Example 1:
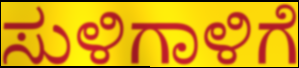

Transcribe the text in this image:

ಸುಳಿಗಾಳಿಗೆ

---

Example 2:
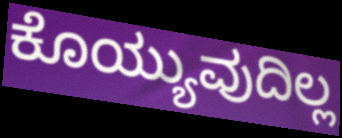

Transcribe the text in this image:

ಕೊಯ್ಯುವುದಿಲ್ಲ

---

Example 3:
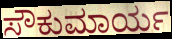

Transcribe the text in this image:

ಸೌಕುಮಾರ್ಯ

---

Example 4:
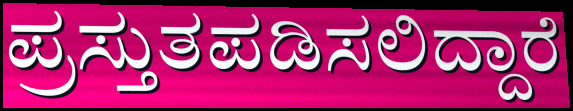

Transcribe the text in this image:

ಪ್ರಸ್ತುತಪಡಿಸಲಿದ್ದಾರೆ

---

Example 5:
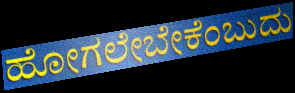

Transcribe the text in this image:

ಹೋಗಲೇಬೇಕೆಂಬುದು